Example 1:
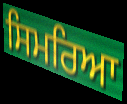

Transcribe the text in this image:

ਸਿਮਰਿਆ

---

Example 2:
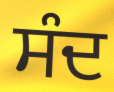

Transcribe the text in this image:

ਸੰਦ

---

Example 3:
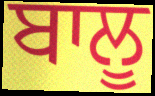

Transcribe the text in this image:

ਬਾਲੂ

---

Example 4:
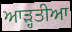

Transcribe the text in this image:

ਆੜ੍ਹਤੀਆ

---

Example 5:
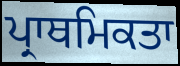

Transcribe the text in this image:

ਪ੍ਰਾਥਮਿਕਤਾ